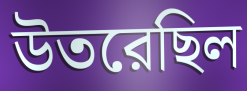
উতরেছিল